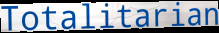
Totalitarian